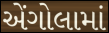
એંગોલામાં